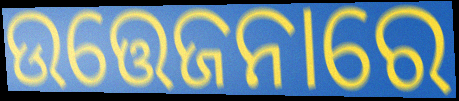
ଉତ୍ତେଜନାରେ